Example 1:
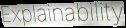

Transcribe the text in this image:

Explainability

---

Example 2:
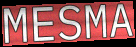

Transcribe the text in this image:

MESMA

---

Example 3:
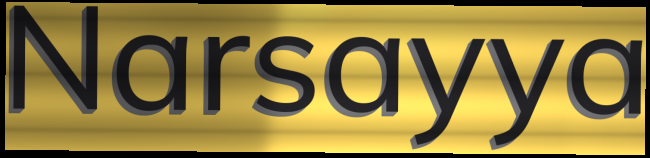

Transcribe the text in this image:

Narsayya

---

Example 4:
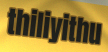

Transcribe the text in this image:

thiliyithu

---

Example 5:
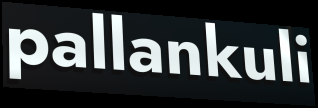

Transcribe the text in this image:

pallankuli